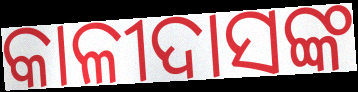
କାଳୀଦାସଙ୍କ